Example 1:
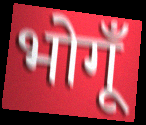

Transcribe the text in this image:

भोगूँ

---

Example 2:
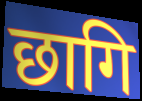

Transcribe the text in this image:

छागि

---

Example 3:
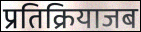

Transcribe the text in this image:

प्रतिक्रियाजब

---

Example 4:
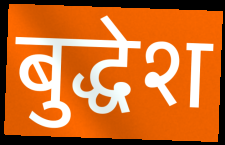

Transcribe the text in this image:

बुद्धेश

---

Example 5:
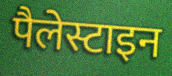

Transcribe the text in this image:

पैलेस्टाइन